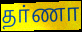
தர்ணா